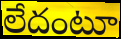
లేదంటూ